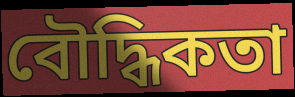
বৌদ্ধিকতা